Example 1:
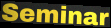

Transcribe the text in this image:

Seminar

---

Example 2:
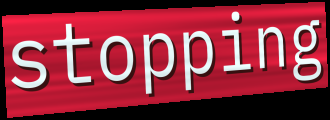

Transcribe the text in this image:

stopping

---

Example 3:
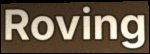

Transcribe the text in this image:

Roving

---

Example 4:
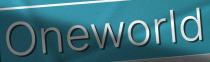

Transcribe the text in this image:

Oneworld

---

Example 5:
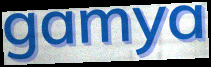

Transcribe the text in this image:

gamya